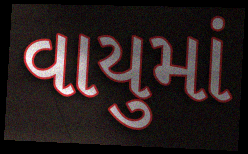
વાયુમાં